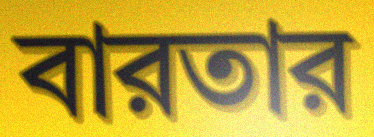
বারতার